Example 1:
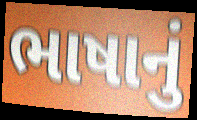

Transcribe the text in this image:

ભાષાનું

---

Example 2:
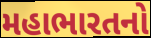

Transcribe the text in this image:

મહાભારતનો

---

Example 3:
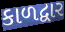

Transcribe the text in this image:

કાળદ્વાર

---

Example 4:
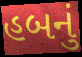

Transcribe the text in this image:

હબનું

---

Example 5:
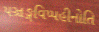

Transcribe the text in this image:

પઞ્ચઙ્ગવિપ્પહીનોતિ